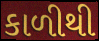
કાળીથી